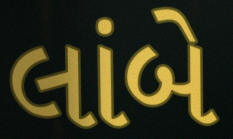
લાંબે